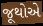
જૂથોએ